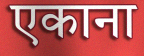
एकाना